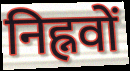
निह्नवों